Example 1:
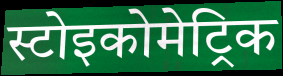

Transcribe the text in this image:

स्टोइकोमेट्रिक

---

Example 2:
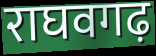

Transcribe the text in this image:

राघवगढ़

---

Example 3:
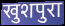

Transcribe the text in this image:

खुशपुरा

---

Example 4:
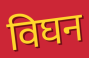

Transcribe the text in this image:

विघन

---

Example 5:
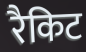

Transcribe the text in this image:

रैकिट